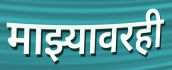
माझ्यावरही